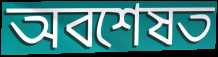
অবশেষত